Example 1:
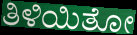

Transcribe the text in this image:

ತಿಳಿಯಿತೋ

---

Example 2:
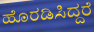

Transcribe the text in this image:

ಹೊರಡಿಸಿದ್ದರೆ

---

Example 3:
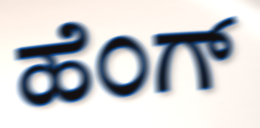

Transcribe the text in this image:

ಹೆಂಗ್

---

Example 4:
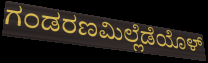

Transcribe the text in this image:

ಗಂಡರಣಮಿಲ್ಲೆಡೆಯೊಳ್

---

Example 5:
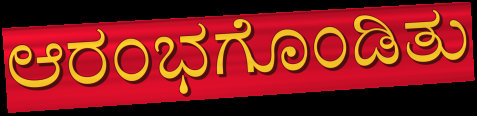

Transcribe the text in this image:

ಆರಂಭಗೊಂಡಿತು